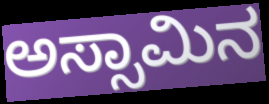
ಅಸ್ಸಾಮಿನ